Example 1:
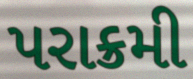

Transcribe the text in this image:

પરાક્રમી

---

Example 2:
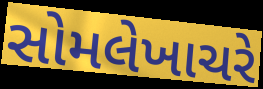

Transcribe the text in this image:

સોમલેખાચરે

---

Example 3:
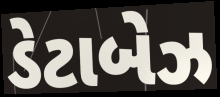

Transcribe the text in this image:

ડેટાબેઝ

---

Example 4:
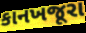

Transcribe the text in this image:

કાનખજૂરા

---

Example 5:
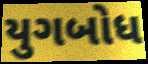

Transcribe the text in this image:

યુગબોધ